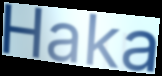
Haka